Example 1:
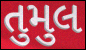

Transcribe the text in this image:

તુમુલ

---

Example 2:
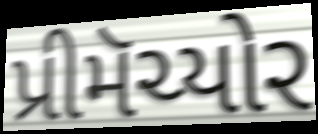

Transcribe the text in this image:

પ્રીમૅચ્યોર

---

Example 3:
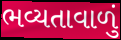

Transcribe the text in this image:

ભવ્યતાવાળું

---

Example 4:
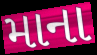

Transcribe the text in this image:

માના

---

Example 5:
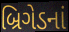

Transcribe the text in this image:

બ્રિગેડનાં